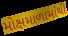
મોક્ષમાળામાંથી